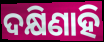
ଦକ୍ଷିଣାହି